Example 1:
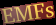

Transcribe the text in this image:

EMFs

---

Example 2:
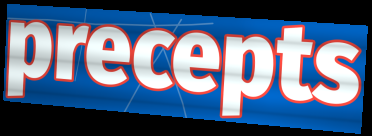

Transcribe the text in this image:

precepts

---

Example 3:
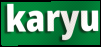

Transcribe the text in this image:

karyu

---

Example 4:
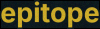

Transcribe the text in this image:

epitope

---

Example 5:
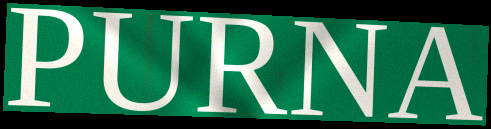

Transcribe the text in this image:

PURNA